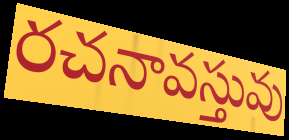
రచనావస్తువు